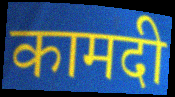
कामदी